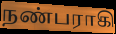
நண்பராகி